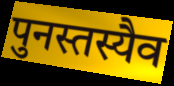
पुनस्तस्यैव